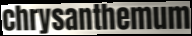
chrysanthemum